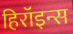
हिरॉइन्स